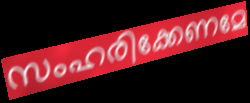
സംഹരിക്കേണമേ